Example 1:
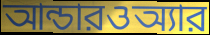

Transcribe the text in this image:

আন্ডারওঅ্যার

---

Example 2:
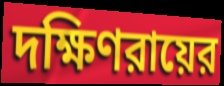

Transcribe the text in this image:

দক্ষিণরায়ের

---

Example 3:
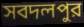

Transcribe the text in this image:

সবদলপুর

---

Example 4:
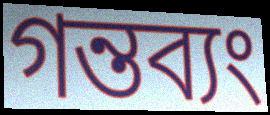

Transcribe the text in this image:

গন্তব্যং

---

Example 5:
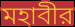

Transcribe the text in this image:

মহাবীর